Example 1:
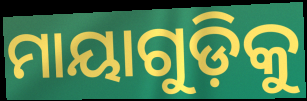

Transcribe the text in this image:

ମାୟାଗୁଡ଼ିକୁ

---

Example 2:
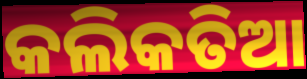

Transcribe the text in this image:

କଲିକତିଆ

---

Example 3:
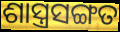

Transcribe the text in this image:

ଶାସ୍ତ୍ରସଙ୍ଗତ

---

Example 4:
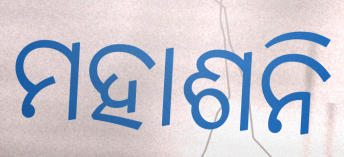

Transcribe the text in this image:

ମହାଶନି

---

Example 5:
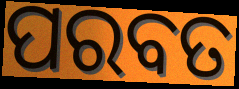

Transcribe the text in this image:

ପରବତ